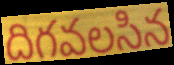
దిగవలసిన